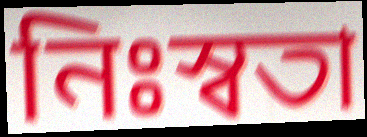
নিঃস্বতা